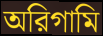
অরিগামি